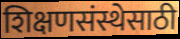
शिक्षणसंस्थेसाठी